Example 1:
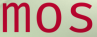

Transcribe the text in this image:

mos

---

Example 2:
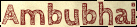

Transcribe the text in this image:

Ambubhai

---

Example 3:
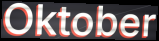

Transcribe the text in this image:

Oktober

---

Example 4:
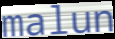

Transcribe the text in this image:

malun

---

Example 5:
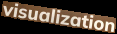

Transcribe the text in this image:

visualization